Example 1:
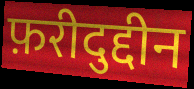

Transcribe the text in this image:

फ़रीदुद्दीन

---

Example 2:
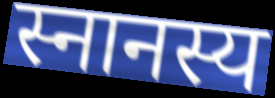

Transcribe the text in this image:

स्नानस्य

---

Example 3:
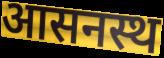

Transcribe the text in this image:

आसनस्थ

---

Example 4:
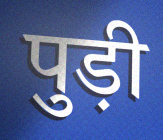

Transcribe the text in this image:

पुड़ी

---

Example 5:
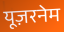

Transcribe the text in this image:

यूज़रनेम